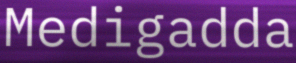
Medigadda